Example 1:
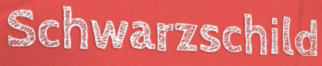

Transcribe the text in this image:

Schwarzschild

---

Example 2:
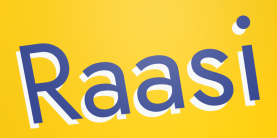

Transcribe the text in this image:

Raasi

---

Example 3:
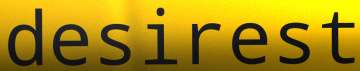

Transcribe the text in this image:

desirest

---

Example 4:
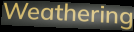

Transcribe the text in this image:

Weathering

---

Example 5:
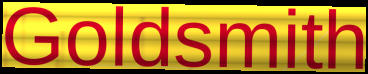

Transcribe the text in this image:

Goldsmith